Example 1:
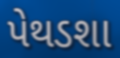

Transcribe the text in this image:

પેથડશા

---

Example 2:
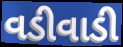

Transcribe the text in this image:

વડીવાડી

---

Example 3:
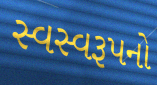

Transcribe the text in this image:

સ્વસ્વરૂપનો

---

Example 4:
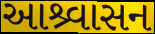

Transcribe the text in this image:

આશ્ર્વાસન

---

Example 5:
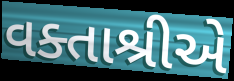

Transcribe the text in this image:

વક્તાશ્રીએ